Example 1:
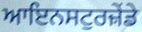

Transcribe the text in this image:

ਆਇਨਸਟੁਰਜ਼ੇਂਡੇ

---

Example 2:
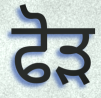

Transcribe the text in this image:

ਫੋਡ਼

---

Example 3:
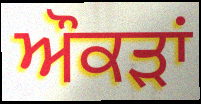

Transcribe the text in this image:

ਔਕਡ਼ਾਂ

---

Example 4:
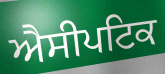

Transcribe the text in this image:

ਐਸੀਪਟਿਕ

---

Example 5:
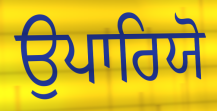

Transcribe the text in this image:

ਉਪਾਰਿਯੋ